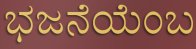
ಭಜನೆಯೆಂಬ